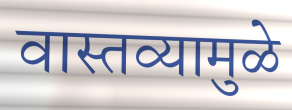
वास्तव्यामुळे